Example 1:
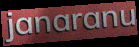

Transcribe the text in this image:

janaranu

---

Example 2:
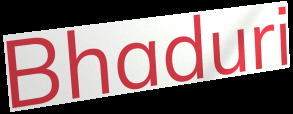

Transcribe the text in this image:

Bhaduri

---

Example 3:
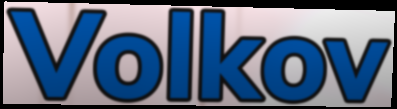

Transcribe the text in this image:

Volkov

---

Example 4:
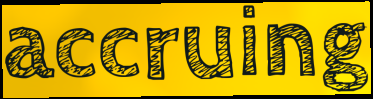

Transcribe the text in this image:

accruing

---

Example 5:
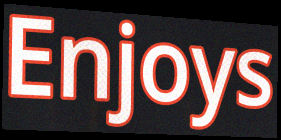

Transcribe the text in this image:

Enjoys